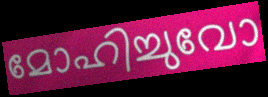
മോഹിച്ചുവോ